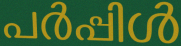
പർപ്പിൾ